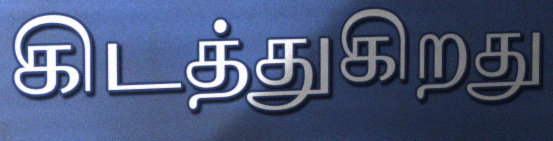
கிடத்துகிறது